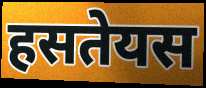
हसतेयस